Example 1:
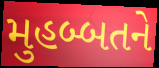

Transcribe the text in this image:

મુહબ્બતને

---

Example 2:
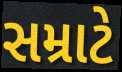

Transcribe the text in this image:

સમ્રાટે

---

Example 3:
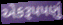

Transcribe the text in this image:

એકરૂપપણું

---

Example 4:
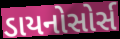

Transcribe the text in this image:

ડાયનોસોર્સ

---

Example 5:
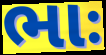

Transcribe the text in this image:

ભાઃ